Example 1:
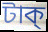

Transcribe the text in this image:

টাক্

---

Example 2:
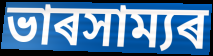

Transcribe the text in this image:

ভাৰসাম্যৰ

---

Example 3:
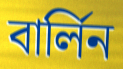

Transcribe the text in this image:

বাৰ্লিন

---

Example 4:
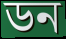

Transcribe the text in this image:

ডন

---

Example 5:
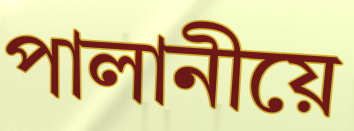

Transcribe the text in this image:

পালানীয়ে